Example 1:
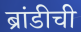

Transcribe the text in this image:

ब्रांडीची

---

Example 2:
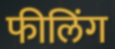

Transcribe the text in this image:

फीलिंग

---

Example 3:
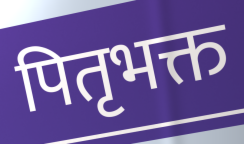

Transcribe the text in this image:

पितृभक्त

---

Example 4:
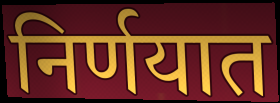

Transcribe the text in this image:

निर्णयात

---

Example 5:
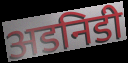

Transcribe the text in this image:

अडनिडी